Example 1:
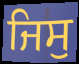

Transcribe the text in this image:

ਜਿਸੁ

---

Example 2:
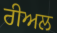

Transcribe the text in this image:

ਰੀਅਲ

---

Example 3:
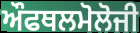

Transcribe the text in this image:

ਔਫਥਲਮੋਲੋਜੀ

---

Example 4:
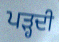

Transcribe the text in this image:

ਪੜ੍ਹਦੀ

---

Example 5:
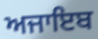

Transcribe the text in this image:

ਅਜਾਇਬ